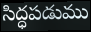
సిద్ధపడుము